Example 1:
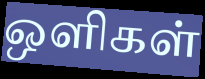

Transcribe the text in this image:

ஒளிகள்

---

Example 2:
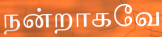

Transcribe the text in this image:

நன்றாகவே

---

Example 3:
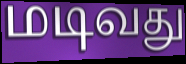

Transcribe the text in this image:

மடிவது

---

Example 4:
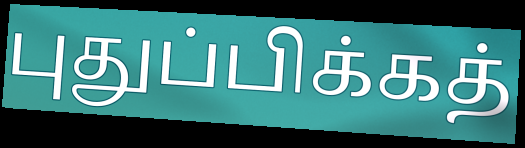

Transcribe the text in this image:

புதுப்பிக்கத்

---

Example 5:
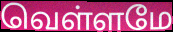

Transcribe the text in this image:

வெள்ளமே